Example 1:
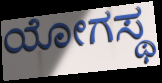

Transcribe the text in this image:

ಯೋಗಸ್ಥ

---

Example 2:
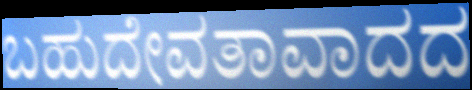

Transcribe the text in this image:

ಬಹುದೇವತಾವಾದದ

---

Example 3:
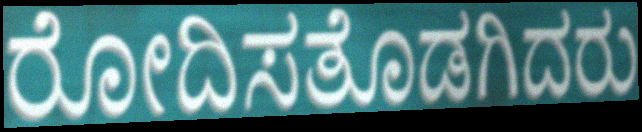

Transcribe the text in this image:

ರೋದಿಸತೊಡಗಿದರು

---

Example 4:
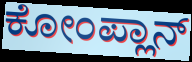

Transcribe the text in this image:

ಕೋಂಪ್ಲಾನ್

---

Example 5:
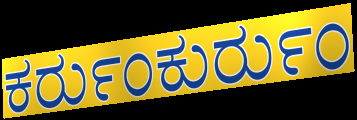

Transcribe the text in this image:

ಕರ್ರುಂಕುರ್ರುಂ